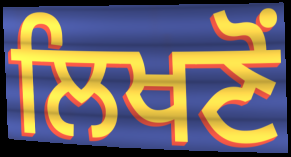
ਲਿਖਣੋਂ